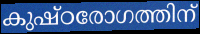
കുഷ്ഠരോഗത്തിന്